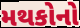
મથકોનો